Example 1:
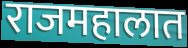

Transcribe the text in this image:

राजमहालात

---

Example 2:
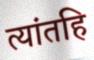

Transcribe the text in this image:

त्यांतहि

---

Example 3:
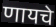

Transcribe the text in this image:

णायचे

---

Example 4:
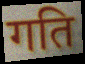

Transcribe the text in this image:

गति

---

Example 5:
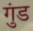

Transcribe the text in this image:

गुंड